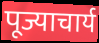
पूज्याचार्य